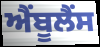
ਐੰਬੂਲੈਂਸ